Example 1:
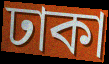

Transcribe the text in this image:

ঢাকা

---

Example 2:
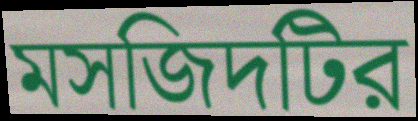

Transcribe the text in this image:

মসজিদটির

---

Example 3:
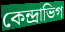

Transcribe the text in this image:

কেন্দ্রাভিগ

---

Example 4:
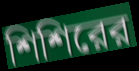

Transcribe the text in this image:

শিশিরের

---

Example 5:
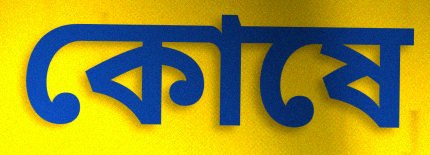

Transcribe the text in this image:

কোষে